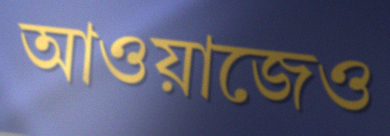
আওয়াজেও